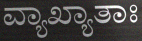
ವ್ಯಾಖ್ಯಾತಾಃ